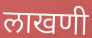
लाखणी